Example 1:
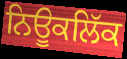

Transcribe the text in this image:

ਨਿਊਕਲਿੱਕ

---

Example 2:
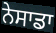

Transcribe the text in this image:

ਨੇਸਾਡਾ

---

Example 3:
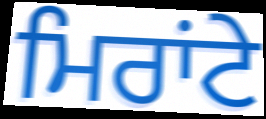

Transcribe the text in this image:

ਮਿਰਾਂਟੇ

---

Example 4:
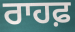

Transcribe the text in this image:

ਰਾਹਫ਼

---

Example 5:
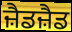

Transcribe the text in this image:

ਜ਼ੈਡਜ਼ੈਡ